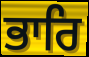
ਭਾਰਿ